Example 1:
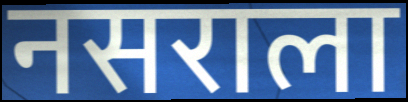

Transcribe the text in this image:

नसराला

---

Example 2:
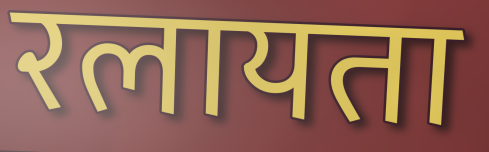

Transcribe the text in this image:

रलायता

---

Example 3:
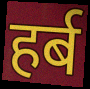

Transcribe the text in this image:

हर्ब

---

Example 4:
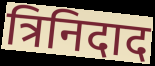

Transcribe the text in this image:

त्रिनिदाद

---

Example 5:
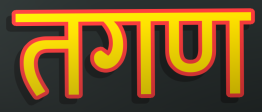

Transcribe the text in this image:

तगण